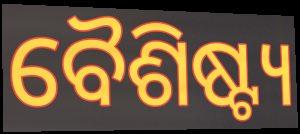
ବୈଶିଷ୍ଟ୍ୟ